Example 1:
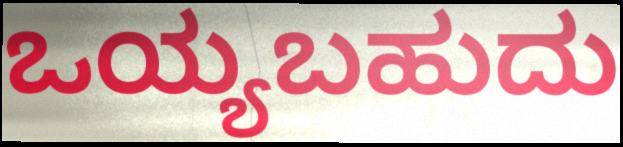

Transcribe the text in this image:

ಒಯ್ಯಬಹುದು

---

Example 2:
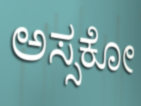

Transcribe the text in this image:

ಅಸ್ಸಕೋ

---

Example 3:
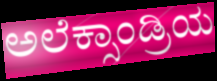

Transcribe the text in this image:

ಅಲೆಕ್ಸಾಂಡ್ರಿಯ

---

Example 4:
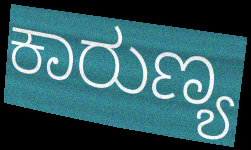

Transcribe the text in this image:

ಕಾರುಣ್ಯ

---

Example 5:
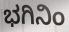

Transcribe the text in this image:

ಭಗಿನಿಂ